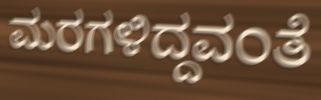
ಮರಗಳಿದ್ದವಂತೆ